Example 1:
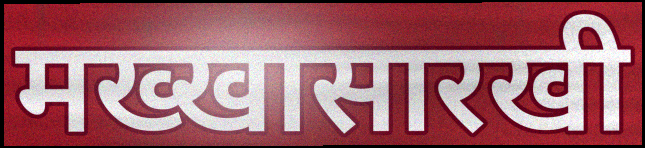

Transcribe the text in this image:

मख्खासारखी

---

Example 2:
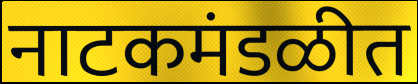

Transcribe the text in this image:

नाटकमंडळीत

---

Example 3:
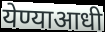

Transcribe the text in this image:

येण्याआधी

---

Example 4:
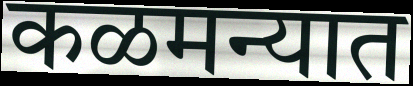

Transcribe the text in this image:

कळमन्यात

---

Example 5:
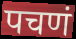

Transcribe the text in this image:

पचणं